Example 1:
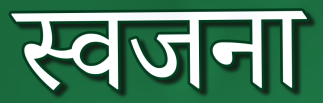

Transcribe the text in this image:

स्वजना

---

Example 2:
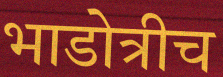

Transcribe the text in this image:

भाडोत्रीच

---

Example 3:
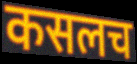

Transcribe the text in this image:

कसलच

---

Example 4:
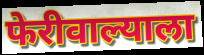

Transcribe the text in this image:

फेरीवाल्याला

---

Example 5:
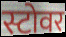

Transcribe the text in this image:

स्टोवर